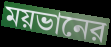
ময়ভানের